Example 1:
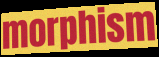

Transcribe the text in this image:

morphism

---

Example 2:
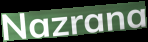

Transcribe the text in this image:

Nazrana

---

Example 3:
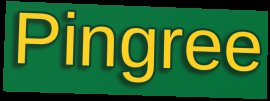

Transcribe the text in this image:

Pingree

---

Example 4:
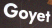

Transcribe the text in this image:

Goyet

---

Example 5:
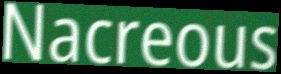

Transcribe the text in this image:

Nacreous